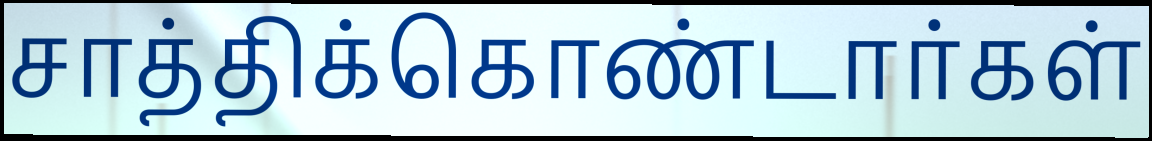
சாத்திக்கொண்டார்கள்